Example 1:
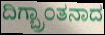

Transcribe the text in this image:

ದಿಗ್ಬ್ರಾಂತನಾದ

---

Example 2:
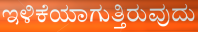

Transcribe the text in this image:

ಇಳಿಕೆಯಾಗುತ್ತಿರುವುದು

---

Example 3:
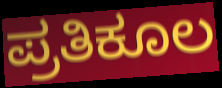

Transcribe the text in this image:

ಪ್ರತಿಕೂಲ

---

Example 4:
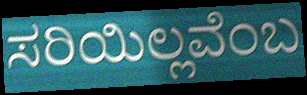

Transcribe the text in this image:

ಸರಿಯಿಲ್ಲವೆಂಬ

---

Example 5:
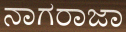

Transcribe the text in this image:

ನಾಗರಾಜಾ